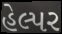
હેલ્પર